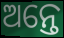
ଅନ୍ତେ